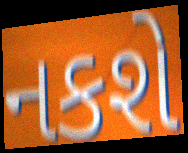
નકશે